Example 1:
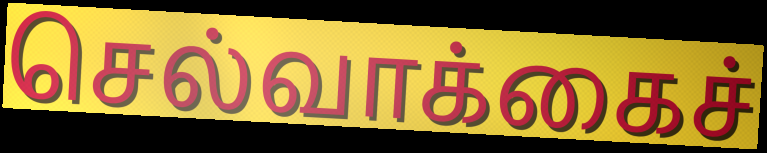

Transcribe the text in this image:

செல்வாக்கைச்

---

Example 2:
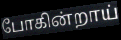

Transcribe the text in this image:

போகின்றாய்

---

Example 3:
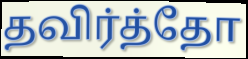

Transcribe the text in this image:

தவிர்த்தோ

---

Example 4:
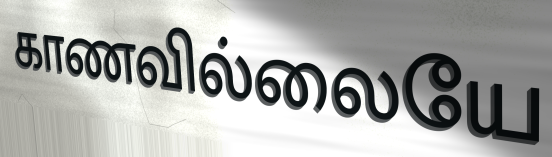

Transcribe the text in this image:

காணவில்லையே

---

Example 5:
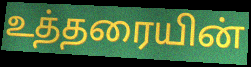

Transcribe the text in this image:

உத்தரையின்